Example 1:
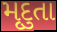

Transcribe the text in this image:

મૃદુતા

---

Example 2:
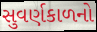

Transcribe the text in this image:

સુવર્ણકાળનો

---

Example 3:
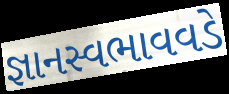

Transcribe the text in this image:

જ્ઞાનસ્વભાવવડે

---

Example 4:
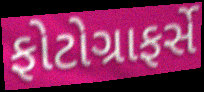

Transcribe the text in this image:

ફોટોગ્રાફર્સે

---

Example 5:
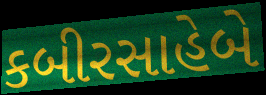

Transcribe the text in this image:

કબીરસાહેબે